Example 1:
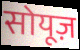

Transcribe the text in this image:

सोयूज़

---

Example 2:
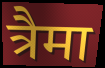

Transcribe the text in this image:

त्रैमा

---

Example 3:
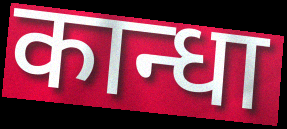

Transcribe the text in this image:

कान्धा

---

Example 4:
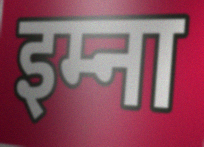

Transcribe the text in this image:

इम्ना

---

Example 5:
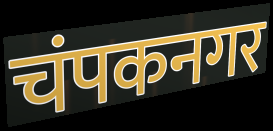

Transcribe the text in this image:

चंपकनगर